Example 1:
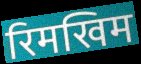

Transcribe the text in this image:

रिमखिम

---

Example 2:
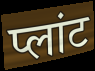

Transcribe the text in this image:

प्लांट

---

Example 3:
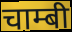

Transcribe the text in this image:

चाम्बी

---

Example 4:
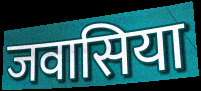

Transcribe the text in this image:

जवासिया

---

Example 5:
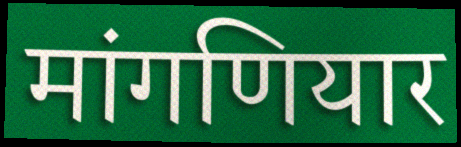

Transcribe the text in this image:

मांगणियार